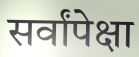
सर्वांपेक्षा